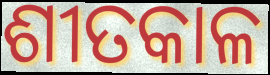
ଶୀତକାଳ